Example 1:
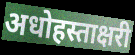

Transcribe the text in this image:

अधोहस्ताक्षरी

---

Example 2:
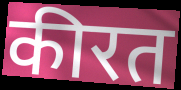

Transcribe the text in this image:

कीरत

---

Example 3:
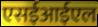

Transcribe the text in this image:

एसईआईएल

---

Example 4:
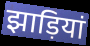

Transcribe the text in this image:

झाड़ियां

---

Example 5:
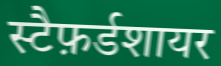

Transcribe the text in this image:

स्टैफ़र्डशायर